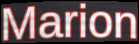
Marion